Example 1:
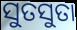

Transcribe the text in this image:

ସୁତସୁତା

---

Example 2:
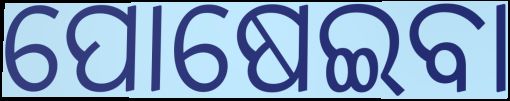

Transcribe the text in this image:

ପୋଷେଇବା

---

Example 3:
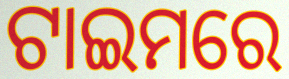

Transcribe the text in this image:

ଟାଇମରେ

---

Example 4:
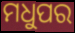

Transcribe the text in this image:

ମଧୁପର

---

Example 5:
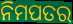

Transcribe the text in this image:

ନିମପତର